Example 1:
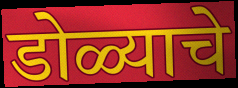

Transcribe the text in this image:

डोळ्याचे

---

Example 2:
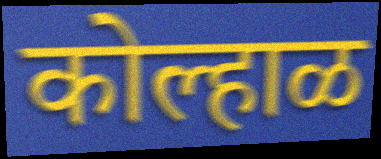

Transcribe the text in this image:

कोल्हाळ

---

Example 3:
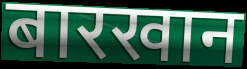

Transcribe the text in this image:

बारखान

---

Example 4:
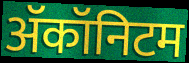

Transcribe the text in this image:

ॲकॉनिटम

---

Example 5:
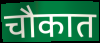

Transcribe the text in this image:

चौकात